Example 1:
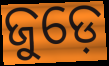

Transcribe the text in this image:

ଜୁଡ଼େ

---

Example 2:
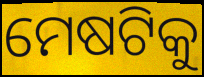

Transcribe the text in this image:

ମେଷଟିକୁ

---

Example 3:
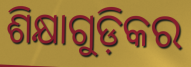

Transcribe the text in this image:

ଶିକ୍ଷାଗୁଡ଼ିକର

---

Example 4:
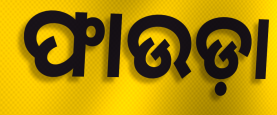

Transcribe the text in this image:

ଫାଉଡ଼ା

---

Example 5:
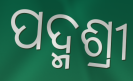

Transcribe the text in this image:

ପଦ୍ମଶ୍ରୀ